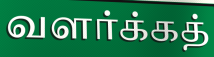
வளர்க்கத்